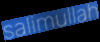
salimullah